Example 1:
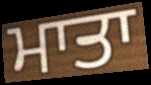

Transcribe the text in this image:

ਮਾਤਾ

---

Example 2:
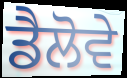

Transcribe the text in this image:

ਡੈਲੋਵੇ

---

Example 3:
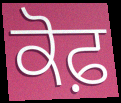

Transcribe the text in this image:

ਕੋਫ਼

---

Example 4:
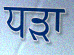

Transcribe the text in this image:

ਧੜਾ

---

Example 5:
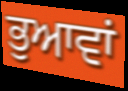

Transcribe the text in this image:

ਭੁਆਵਾਂ